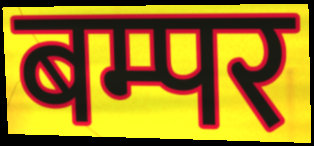
बम्पर